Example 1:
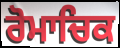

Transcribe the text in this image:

ਰੋਮਾਚਿਕ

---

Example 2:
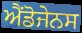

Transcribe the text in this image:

ਐਂਡੋਜੇਨਸ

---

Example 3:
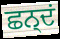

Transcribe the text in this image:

ਛਨ੍ਦਂ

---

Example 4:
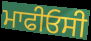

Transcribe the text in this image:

ਮਾਫੀਓਸੀ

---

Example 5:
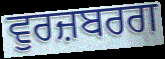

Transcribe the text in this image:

ਵੁਰਜ਼ਬਰਗ